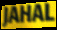
JAHAL